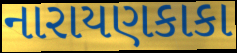
નારાયણકાકા